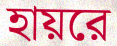
হায়রে